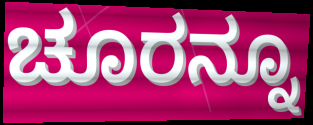
ಚೂರನ್ನೂ